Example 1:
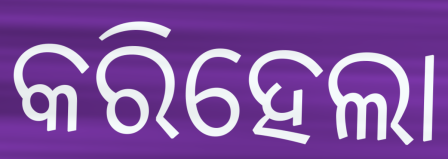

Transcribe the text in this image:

କରିହେଲା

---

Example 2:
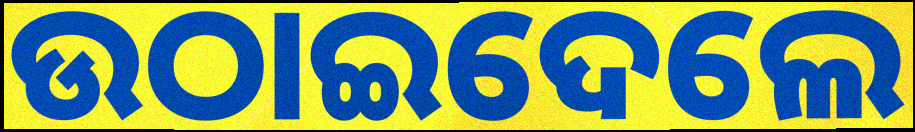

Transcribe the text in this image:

ଉଠାଇଦେଲେ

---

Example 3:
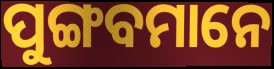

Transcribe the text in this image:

ପୁଙ୍ଗବମାନେ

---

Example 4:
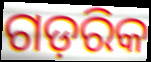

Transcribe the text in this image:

ଗଡ଼ରିକ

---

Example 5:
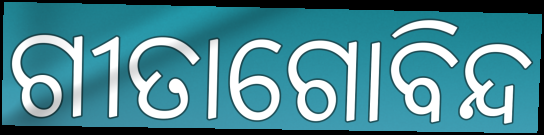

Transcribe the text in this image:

ଗୀତାଗୋବିନ୍ଦ